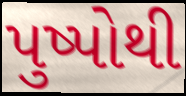
પુષ્પોથી